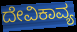
ದೇವಿಕಾವ್ಯ